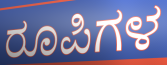
ರೂಪಿಗಳ